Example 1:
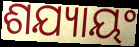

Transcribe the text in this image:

ଶଯ୍ୟାୟଂ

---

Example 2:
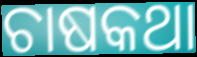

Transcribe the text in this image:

ଚାଷକଥା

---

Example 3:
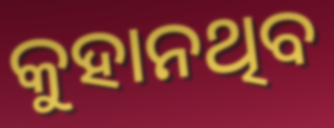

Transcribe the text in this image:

କୁହାନଥିବ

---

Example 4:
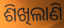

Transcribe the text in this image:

ଶିଖିଲାଣି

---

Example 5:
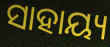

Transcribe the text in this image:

ସାହାୟ୍ୟ